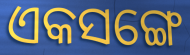
ଏକସଙ୍ଗେ